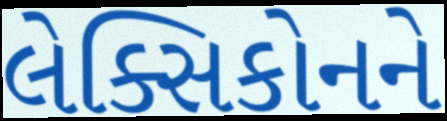
લેક્સિકોનને